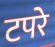
टपरे